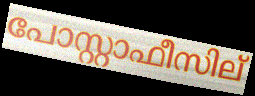
പോസ്റ്റാഫീസില്